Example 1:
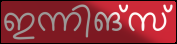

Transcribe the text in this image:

ഇന്നിങ്സ്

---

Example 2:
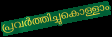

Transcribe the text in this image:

പ്രവർത്തിച്ചുകൊള്ളാം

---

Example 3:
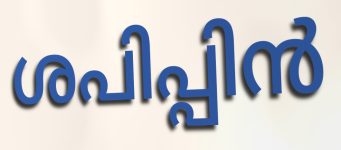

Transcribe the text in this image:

ശപിപ്പിൻ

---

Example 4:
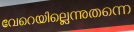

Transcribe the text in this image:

വേറെയില്ലെന്നുതന്നെ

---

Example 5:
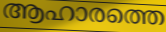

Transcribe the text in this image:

ആഹാരത്തെ